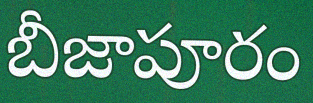
బీజాపూరం